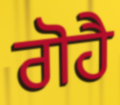
ਗੋਹੈ